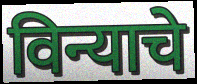
विन्याचे